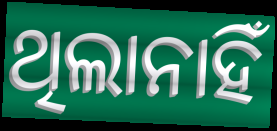
ଥିଲାନାହିଁ